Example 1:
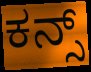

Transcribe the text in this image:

ಕನ್ಸ್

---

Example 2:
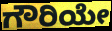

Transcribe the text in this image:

ಗೌರಿಯೇ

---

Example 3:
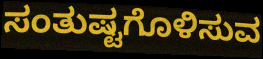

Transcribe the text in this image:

ಸಂತುಷ್ಟಗೊಳಿಸುವ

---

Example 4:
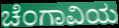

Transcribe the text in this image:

ಚೆಂಗಾವಿಯ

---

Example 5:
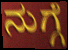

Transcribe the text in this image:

ನುಗ್ಗೆ